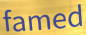
famed